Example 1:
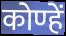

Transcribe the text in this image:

कोण्हें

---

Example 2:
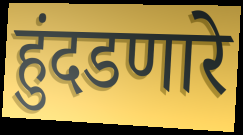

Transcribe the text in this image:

हुंदडणारे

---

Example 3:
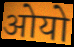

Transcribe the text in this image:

ओयो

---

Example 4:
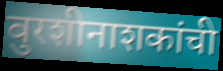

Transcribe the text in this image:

बुरशीनाशकांची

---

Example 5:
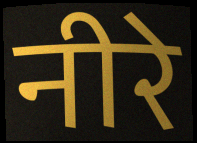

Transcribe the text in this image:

नीरे